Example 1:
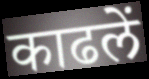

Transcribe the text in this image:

काढलें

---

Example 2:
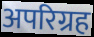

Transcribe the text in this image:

अपरिग्रह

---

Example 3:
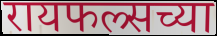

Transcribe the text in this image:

रायफल्सच्या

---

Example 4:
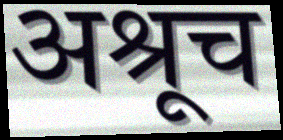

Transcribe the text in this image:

अश्रूच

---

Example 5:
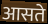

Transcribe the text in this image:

आसते